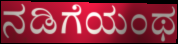
ನಡಿಗೆಯಂಥ